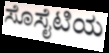
ಸೊಸೈಟಿಯ